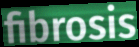
fibrosis